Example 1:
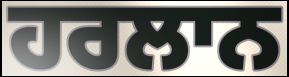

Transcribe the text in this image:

ਹਰਲਾਨ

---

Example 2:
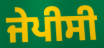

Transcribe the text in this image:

ਜੇਪੀਸੀ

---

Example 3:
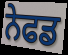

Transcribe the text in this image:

ਨੇਫਡ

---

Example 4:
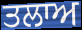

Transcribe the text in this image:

ਤਲਾਅ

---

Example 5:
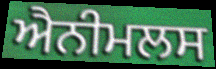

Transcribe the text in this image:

ਐਨੀਮਲਸ